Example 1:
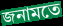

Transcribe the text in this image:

জনামতে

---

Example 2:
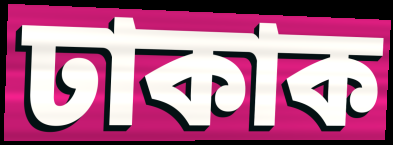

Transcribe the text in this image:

ঢাকাক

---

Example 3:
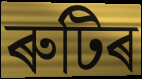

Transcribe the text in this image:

ৰুটিৰ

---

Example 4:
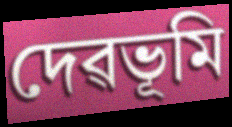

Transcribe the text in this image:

দেৱভূমি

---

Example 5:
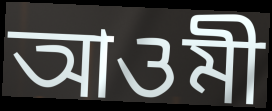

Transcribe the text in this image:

আওমী